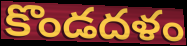
కొండదళం